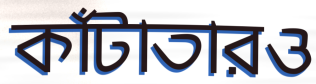
কাঁটাতারও